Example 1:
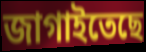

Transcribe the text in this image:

জাগাইতেছে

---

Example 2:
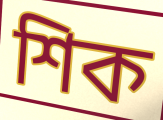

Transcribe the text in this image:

শিক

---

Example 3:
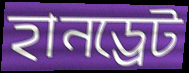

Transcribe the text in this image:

হানড্রেট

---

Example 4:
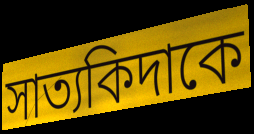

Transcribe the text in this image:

সাত্যকিদাকে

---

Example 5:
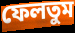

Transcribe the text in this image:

ফেলতুম